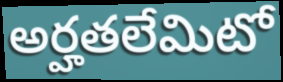
అర్హతలేమిటో